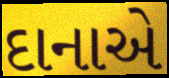
દાનાએ